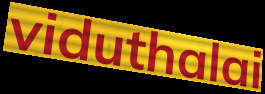
viduthalai